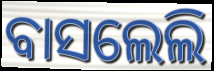
ବାସଲେଲି